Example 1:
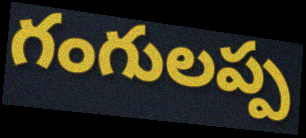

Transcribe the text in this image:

గంగులప్ప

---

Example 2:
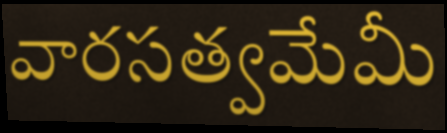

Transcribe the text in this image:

వారసత్వమేమీ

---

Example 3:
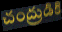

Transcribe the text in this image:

చంద్రుడికి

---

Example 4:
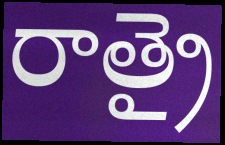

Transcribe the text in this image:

రాత్రై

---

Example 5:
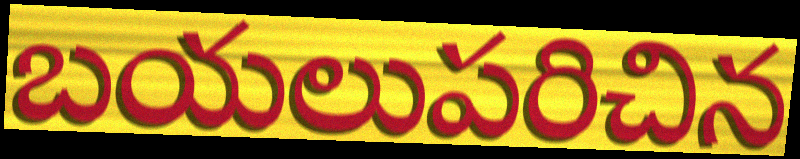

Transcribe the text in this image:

బయలుపరిచిన